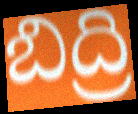
బిద్రి